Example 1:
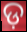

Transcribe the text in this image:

ଡ଼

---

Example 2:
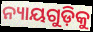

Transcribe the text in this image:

ନ୍ୟାୟଗୁଡ଼ିକୁ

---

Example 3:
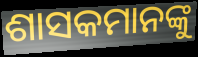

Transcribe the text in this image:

ଶାସକମାନଙ୍କୁ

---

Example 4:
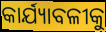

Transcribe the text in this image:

କାର୍ଯ୍ୟାବଳୀକୁ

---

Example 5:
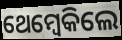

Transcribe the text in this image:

ଥେମ୍ବେକିଲେ